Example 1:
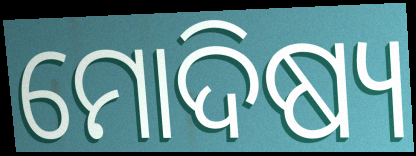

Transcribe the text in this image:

ମୋଦିଷ୍ୟ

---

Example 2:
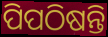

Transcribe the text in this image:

ପିପଠିଷନ୍ତି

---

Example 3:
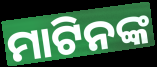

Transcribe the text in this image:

ମାଟିନଙ୍କ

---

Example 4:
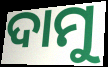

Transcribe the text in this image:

ଦାମୁ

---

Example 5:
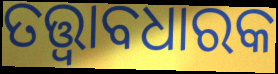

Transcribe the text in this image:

ତତ୍ତ୍ୱାବଧାରକ